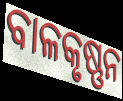
ବାଳକୃଷ୍ଣନ